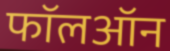
फॉलऑन